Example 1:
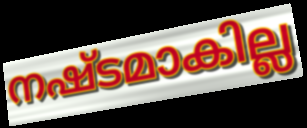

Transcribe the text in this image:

നഷ്ടമാകില്ല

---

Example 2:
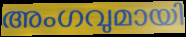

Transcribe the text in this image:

അംഗവുമായി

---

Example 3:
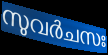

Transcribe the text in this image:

സുവർചസഃ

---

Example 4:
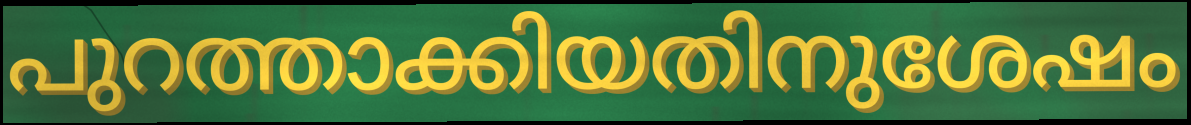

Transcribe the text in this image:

പുറത്താക്കിയതിനുശേഷം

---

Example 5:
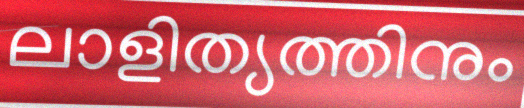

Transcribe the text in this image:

ലാളിത്യത്തിനും